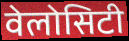
वेलोसिटी